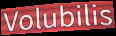
Volubilis